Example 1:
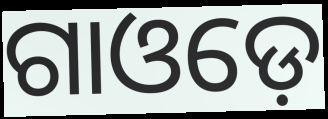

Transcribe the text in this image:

ଗାଓଡ଼େ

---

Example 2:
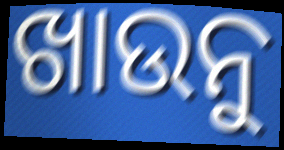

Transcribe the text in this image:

ଖାଉନୁ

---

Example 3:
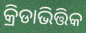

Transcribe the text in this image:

କ୍ରିଡାଭିତ୍ତିକ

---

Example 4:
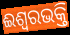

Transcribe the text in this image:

ଈଶ୍ୱରଭକ୍ତି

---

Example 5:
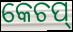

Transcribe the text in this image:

କେଚପ୍